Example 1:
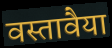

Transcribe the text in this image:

वस्तावैया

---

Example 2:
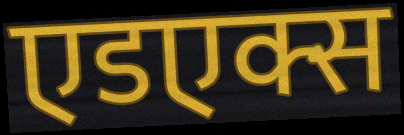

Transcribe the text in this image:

एडएक्स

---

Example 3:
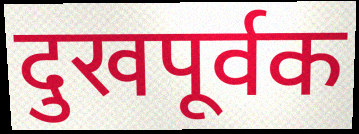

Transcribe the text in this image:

दुखपूर्वक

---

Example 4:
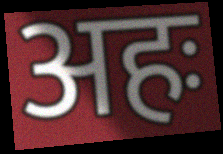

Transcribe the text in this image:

अहः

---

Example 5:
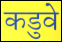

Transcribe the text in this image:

कडुवे